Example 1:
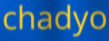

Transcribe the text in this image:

chadyo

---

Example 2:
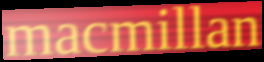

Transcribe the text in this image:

macmillan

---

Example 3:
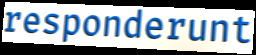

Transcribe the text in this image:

responderunt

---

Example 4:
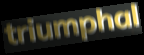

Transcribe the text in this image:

triumphal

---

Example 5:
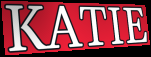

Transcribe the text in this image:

KATIE